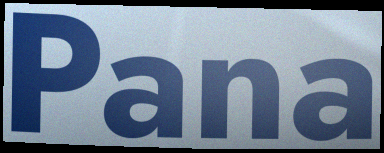
Pana